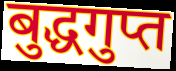
बुद्धगुप्त